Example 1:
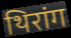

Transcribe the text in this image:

थिरांग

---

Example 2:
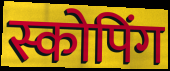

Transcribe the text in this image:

स्कोपिंग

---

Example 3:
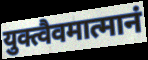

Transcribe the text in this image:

युक्त्वैवमात्मानं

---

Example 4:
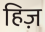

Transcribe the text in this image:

हिज़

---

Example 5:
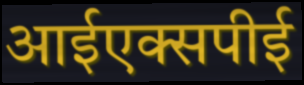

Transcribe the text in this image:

आईएक्सपीई